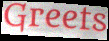
Greets